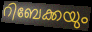
റിബേക്കയും